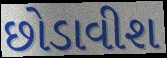
છોડાવીશ